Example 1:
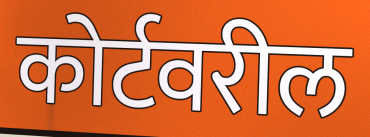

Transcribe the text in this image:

कोर्टवरील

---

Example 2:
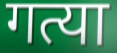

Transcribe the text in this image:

गत्या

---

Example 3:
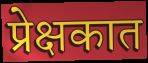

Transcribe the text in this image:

प्रेक्षकात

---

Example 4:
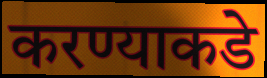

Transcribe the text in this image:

करण्याकडे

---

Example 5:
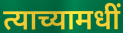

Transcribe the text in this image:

त्याच्यामधीं